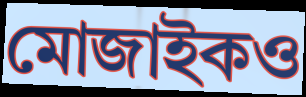
মোজাইকও